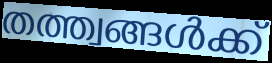
തത്ത്വങ്ങൾക്ക്